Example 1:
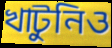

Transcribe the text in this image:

খাটুনিও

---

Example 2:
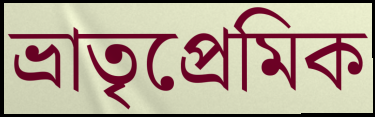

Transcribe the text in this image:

ভ্রাতৃপ্রেমিক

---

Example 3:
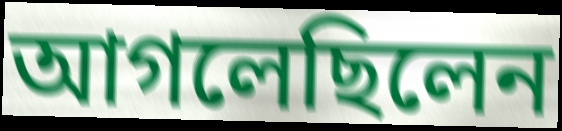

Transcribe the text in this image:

আগলেছিলেন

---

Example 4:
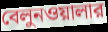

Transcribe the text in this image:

বেলুনওয়ালার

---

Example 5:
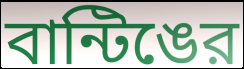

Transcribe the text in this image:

বান্টিঙের